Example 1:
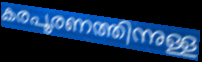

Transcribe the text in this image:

കരപൂരണത്തിന്നുള്ള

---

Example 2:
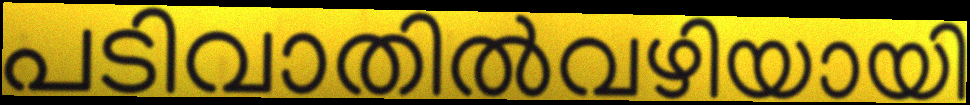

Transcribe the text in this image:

പടിവാതിൽവഴിയായി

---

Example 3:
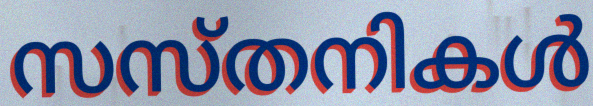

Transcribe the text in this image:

സസ്തനികൾ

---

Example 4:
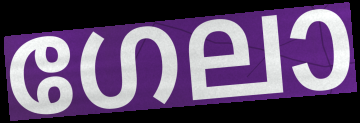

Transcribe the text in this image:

ഗേലാ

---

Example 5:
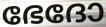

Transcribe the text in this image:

ഭേദോ